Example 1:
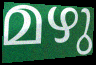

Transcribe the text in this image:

മഴു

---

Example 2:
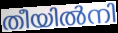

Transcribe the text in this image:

തീയിൽനി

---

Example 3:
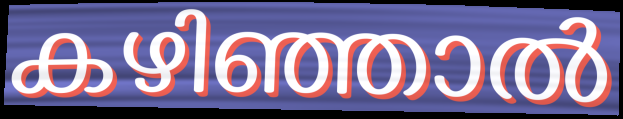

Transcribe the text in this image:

കഴിഞ്ഞാൽ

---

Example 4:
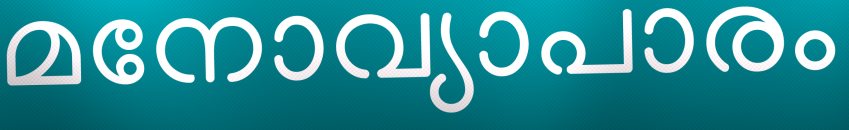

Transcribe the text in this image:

മനോവ്യാപാരം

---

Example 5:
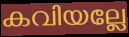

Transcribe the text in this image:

കവിയല്ലേ